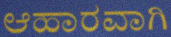
ಆಹಾರವಾಗಿ